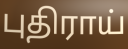
புதிராய்